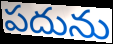
పదును